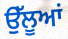
ਉੱਲੂਆਂ